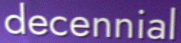
decennial